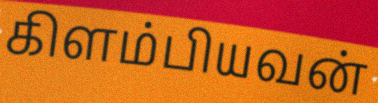
கிளம்பியவன்